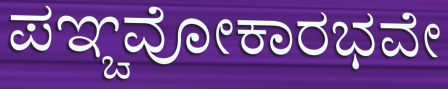
ಪಞ್ಚವೋಕಾರಭವೇ